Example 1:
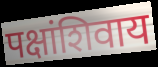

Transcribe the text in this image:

पक्षांशिवाय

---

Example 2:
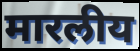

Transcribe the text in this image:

मारलीय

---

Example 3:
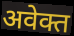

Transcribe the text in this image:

अवेक्त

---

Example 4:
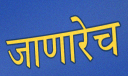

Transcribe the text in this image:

जाणारेच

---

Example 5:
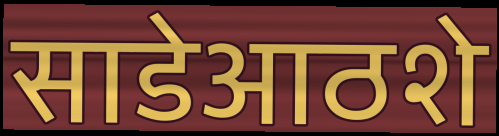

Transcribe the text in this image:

साडेआठशे